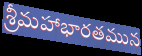
శ్రీమహాభారతమున